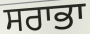
ਸਰਾਭਾ